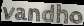
vandho